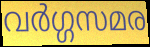
വർഗ്ഗസമര